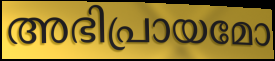
അഭിപ്രായമോ